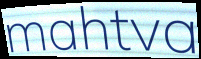
mahtva